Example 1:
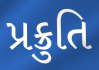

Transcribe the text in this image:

પ્રક્રુતિ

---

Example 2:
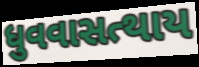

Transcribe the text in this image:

ધુવવાસત્થાય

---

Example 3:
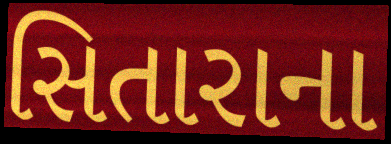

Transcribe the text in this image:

સિતારાના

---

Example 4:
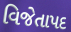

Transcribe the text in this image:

વિજેતાપદ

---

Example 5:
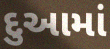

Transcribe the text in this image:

દુઆમાં